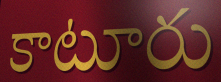
కాటూరు